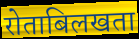
रोताबिलखता